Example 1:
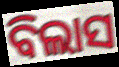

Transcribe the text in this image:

ବିଲାସ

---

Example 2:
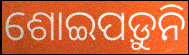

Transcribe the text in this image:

ଶୋଇପଡ଼ୁନି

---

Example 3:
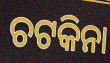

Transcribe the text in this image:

ଚଟକିନା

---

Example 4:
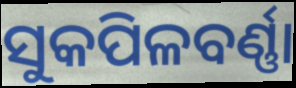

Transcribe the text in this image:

ସୁକପିଳବର୍ଣ୍ଣା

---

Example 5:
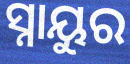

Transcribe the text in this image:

ସ୍ନାୟୁର